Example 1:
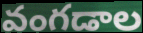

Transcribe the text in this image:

వంగడాల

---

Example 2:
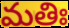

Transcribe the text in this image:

మతిః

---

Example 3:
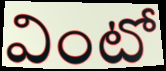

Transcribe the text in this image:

వింటో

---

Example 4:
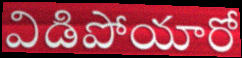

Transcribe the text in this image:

విడిపోయారో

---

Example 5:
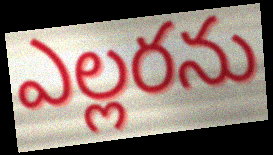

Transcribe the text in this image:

ఎల్లరను